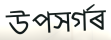
উপসৰ্গৰ